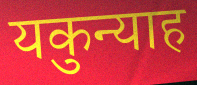
यकुन्याह